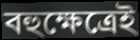
বহুক্ষেত্রেই